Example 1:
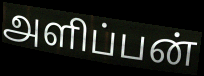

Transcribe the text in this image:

அளிப்பன்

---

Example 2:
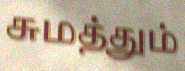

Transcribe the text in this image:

சுமத்தும்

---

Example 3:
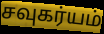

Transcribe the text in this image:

சவுகர்யம்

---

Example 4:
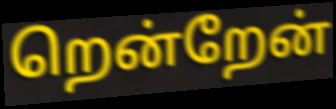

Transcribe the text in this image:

றென்றேன்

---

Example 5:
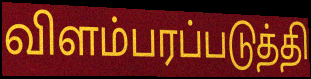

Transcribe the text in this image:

விளம்பரப்படுத்தி